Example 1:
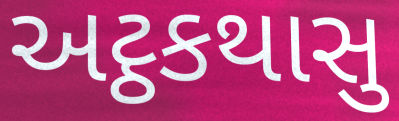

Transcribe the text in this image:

અટ્ઠકથાસુ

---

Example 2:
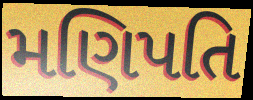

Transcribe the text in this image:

મણિપતિ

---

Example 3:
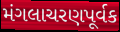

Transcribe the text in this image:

મંગલાચરણપૂર્વક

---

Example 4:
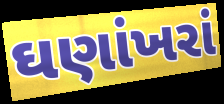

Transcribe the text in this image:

ઘણાંખરાં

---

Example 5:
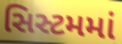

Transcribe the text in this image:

સિસ્ટમમાં